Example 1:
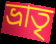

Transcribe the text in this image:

ভ্ৰাতৃ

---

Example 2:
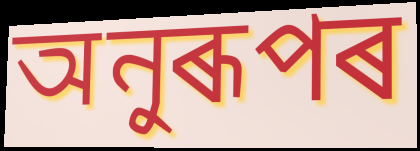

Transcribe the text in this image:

অনুৰূপৰ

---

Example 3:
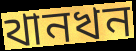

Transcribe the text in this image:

থানখন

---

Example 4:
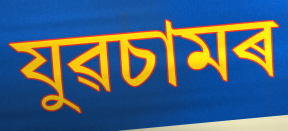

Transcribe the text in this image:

যুৱচামৰ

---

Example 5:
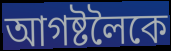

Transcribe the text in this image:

আগষ্টলৈকে